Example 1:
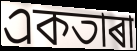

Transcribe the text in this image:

একতাৰা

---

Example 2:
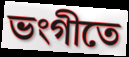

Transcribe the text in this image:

ভংগীতে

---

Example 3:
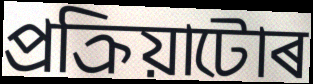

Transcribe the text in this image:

প্ৰক্ৰিয়াটোৰ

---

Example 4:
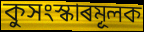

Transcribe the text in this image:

কুসংস্কাৰমূলক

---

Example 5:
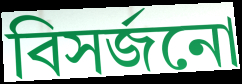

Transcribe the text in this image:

বিসৰ্জনো